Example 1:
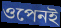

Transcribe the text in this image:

ওপেনই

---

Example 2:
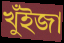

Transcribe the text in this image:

খুঁইজা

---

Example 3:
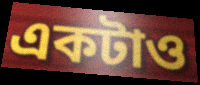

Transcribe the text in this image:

একটাও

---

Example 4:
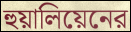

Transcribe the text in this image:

হুয়ালিয়েনের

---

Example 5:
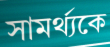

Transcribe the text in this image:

সামর্থ্যকে